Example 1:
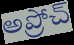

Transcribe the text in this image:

అప్రోచ్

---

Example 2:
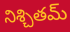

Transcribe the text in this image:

నిశ్చితమ్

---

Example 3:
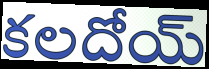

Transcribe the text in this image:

కలదోయ్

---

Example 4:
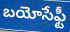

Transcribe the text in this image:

బయోసేఫ్టీ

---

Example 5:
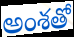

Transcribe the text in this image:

అంశతో